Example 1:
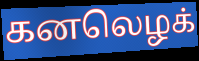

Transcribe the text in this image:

கனலெழக்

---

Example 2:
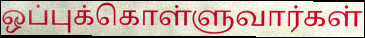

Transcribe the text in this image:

ஒப்புக்கொள்ளுவார்கள்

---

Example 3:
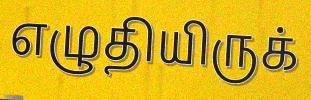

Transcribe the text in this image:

எழுதியிருக்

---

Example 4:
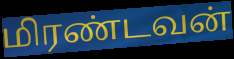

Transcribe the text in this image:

மிரண்டவன்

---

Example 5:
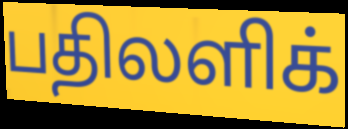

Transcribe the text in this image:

பதிலளிக்